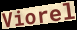
Viorel